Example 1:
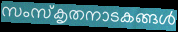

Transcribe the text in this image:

സംസ്കൃതനാടകങ്ങൾ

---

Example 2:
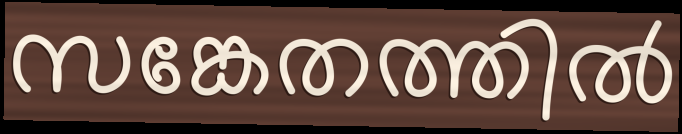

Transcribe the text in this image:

സങ്കേതത്തിൽ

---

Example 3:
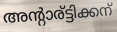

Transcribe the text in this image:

അന്റാര്ട്ടിക്കന്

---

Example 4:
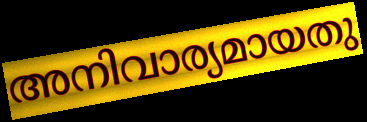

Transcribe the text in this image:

അനിവാര്യമായതു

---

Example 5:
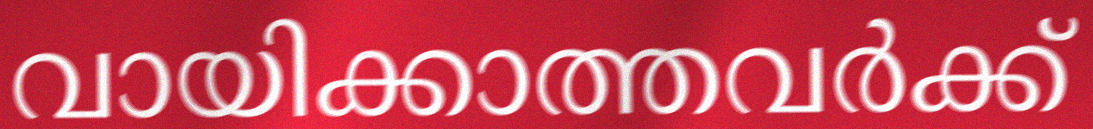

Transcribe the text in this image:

വായിക്കാത്തവർക്ക്